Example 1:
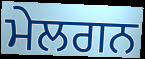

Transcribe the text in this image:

ਮੇਲਗਨ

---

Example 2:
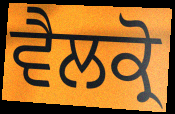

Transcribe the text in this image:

ਵੈਲਕ੍ਰੋ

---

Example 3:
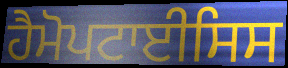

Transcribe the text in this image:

ਹੈਮੋਪਟਾਈਸਿਸ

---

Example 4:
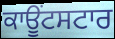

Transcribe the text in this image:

ਕਾਊਂਟਸਟਾਰ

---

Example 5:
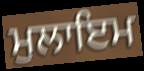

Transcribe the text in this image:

ਮੁਲਾਇਮ